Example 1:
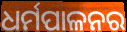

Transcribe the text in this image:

ଧର୍ମପାଳନର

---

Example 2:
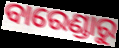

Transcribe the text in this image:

ବାରେଣ୍ଡାରୁ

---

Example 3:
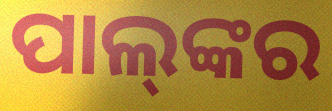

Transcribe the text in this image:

ପାଲ୍‍ଙ୍କର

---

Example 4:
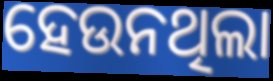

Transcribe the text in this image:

ହେଉନଥିଲା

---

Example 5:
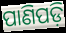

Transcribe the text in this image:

ପାଣିପଡ଼ି